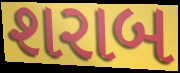
શરાબ